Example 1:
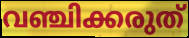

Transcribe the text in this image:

വഞ്ചിക്കരുത്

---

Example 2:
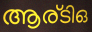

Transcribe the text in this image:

ആര്ടിഒ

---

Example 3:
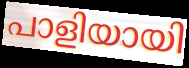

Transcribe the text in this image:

പാളിയായി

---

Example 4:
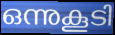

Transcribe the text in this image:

ഒന്നുകൂടി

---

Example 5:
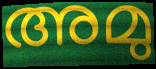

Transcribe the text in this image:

അമു